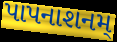
પાપનાશનમ્